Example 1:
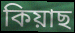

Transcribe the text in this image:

কিয়াছ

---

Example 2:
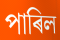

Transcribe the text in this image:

পাৰিল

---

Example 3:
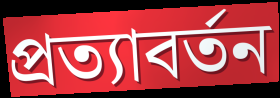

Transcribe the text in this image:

প্ৰত্যাবৰ্তন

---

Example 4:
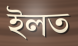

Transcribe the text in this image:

ইলত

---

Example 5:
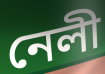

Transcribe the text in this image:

নেলী